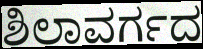
ಶಿಲಾವರ್ಗದ